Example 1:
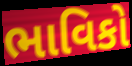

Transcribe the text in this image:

ભાવિકો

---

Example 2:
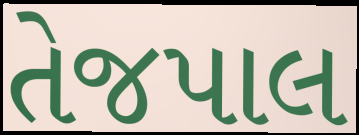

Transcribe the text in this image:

તેજપાલ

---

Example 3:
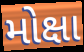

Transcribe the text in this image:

મોક્ષા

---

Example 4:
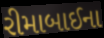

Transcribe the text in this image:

રીમાબાઈના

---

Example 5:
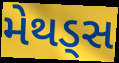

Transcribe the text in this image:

મેથડ્સ